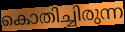
കൊതിച്ചിരുന്ന